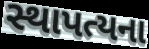
સ્થાપત્યના